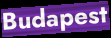
Budapest